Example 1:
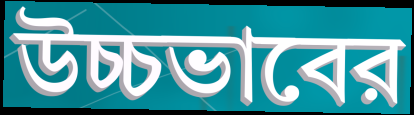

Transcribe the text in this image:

উচ্চভাবের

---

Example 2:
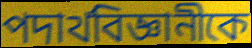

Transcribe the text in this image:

পদার্থবিজ্ঞানীকে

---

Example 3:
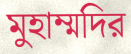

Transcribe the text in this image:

মুহাম্মদির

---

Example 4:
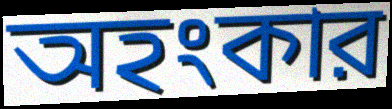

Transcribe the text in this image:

অহংকার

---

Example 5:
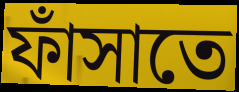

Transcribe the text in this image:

ফাঁসাতে